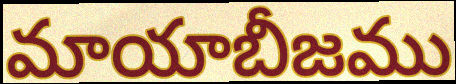
మాయాబీజము